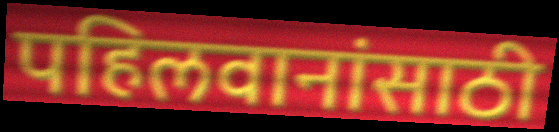
पहिलवानांसाठी